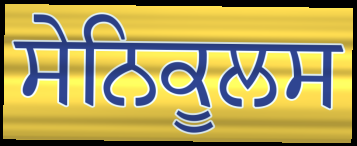
ਸੇਨਿਕੂਲਸ